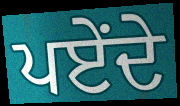
ਪਏਂਦੇ